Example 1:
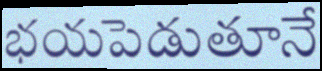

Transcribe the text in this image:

భయపెడుతూనే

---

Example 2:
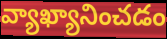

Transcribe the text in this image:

వ్యాఖ్యానించడం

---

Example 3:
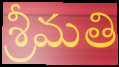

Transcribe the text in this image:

శ్రీమతి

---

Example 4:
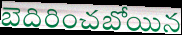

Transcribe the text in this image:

బెదిరించబోయిన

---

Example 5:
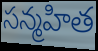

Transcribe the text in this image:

సన్మహిత